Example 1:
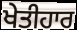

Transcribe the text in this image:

ਖੇਤੀਹਾਰ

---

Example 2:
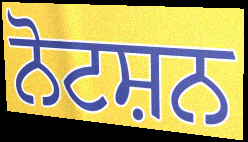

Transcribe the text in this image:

ਨੋਟਸ਼ਨ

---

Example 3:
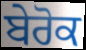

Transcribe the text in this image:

ਬੇਰੋਕ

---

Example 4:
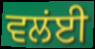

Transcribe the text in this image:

ਵਲਂਈ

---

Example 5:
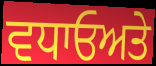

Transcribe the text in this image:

ਵਧਾਓਅਤੇ